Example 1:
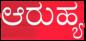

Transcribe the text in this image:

ಆರುಹ್ಯ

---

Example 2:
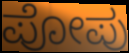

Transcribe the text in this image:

ಪೋಪು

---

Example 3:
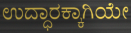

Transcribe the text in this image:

ಉದ್ಧಾರಕ್ಕಾಗಿಯೇ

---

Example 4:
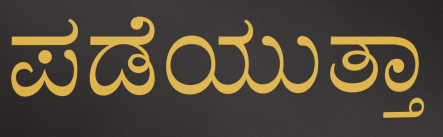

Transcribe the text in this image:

ಪಡೆಯುತ್ತಾ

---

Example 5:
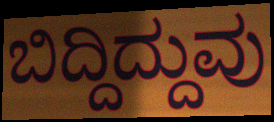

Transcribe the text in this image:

ಬಿದ್ದಿದ್ದುವು